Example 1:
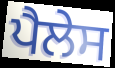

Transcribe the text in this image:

ਪੈਲੇਸ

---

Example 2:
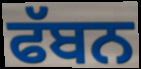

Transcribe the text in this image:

ਫੱਬਨ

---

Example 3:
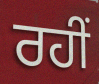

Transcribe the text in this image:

ਰਹੀਂ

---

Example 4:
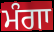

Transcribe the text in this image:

ਮੰਗਾ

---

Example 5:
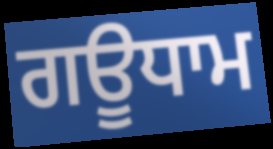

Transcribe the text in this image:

ਗਊਧਾਮ